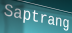
Saptrang